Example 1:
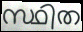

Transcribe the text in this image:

സ്ഥിത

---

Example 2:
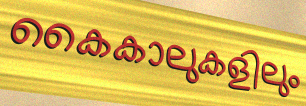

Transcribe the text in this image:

കൈകാലുകളിലും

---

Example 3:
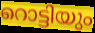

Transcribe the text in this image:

റൊട്ടിയും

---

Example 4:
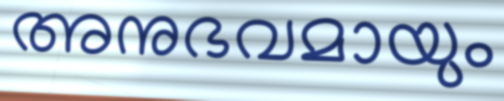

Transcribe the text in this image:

അനുഭവമായും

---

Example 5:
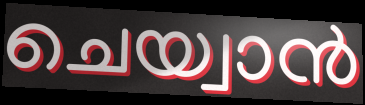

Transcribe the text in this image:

ചെയ്വാൻ